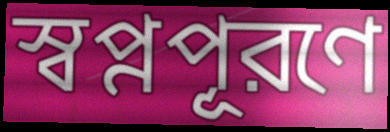
স্বপ্নপূরণে